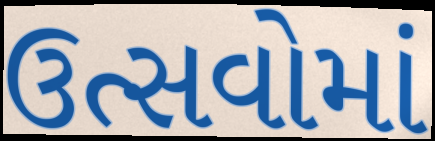
ઉત્સવોમાં